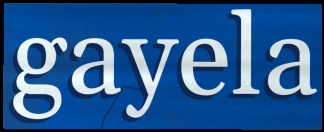
gayela